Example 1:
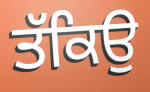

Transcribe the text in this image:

ਤੱਕਿਉ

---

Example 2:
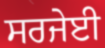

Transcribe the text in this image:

ਸਰਜੇਈ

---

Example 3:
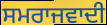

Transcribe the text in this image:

ਸਮਰਾਜਵਾਦੀ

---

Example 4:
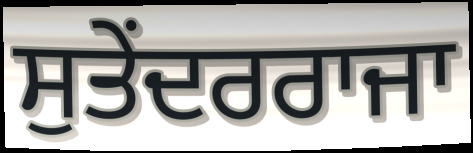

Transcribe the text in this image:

ਸੁਤੇਂਦਰਰਾਜਾ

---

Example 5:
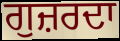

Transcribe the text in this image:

ਗੁਜ਼ਰਦਾ